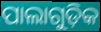
ପାଲାଗୁଡ଼ିକ